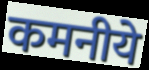
कमनीये